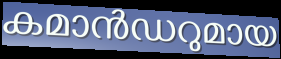
കമാൻഡറുമായ